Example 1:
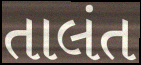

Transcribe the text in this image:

તાલંત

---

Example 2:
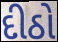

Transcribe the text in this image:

દીઠો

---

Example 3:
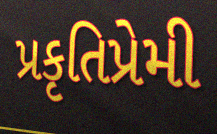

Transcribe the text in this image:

પ્રકૃતિપ્રેમી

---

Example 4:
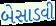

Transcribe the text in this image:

બેસાડવી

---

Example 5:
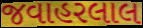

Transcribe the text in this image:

જવાહરલાલ